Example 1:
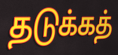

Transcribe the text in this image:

தடுக்கத்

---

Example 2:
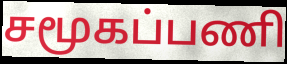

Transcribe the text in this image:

சமூகப்பணி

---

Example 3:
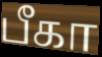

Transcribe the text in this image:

பீகா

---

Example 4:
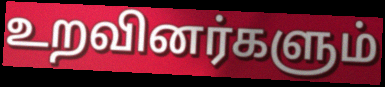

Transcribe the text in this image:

உறவினர்களும்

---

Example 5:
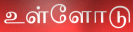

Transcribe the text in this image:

உள்ளோடு